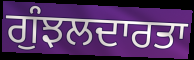
ਗੁੰਝਲਦਾਰਤਾ